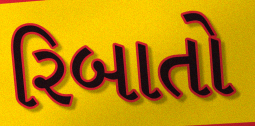
રિબાતો